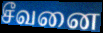
சீவனை